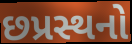
છપ્રસ્થનો